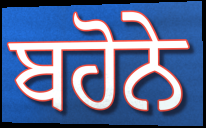
ਬਹੋਨੇ